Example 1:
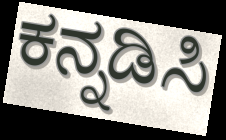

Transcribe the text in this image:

ಕನ್ನಡಿಸಿ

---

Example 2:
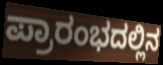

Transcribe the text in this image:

ಪ್ರಾರಂಭದಲ್ಲಿನ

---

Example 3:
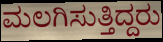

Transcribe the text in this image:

ಮಲಗಿಸುತ್ತಿದ್ದರು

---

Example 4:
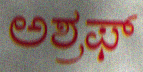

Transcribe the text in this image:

ಅಶ್ರಫ್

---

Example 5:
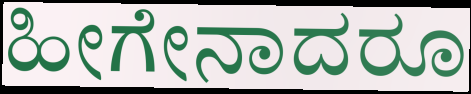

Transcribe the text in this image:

ಹೀಗೇನಾದರೂ